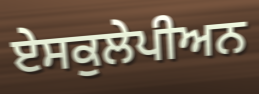
ਏਸਕੁਲੇਪੀਅਨ